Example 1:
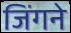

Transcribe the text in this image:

जिंगने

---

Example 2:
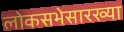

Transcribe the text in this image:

लोकसभेसारख्या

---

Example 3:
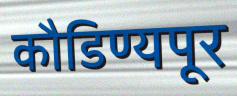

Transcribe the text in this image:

कौडिण्यपूर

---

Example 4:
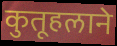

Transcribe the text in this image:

कुतूहलाने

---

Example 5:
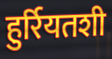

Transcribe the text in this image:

हुर्रियतशी